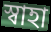
স্বাহা